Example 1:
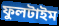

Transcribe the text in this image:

ফুলটাইম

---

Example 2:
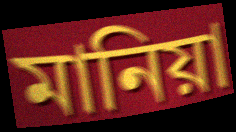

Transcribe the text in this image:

মানিয়া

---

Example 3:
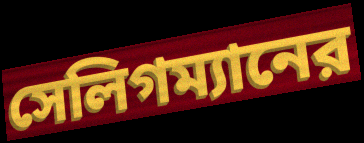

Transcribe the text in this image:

সেলিগম্যানের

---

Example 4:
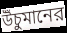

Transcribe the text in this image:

উঁচুমানের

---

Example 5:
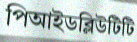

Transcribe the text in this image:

পিআইডব্লিউটিটি